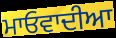
ਮਾਓਵਾਦੀਆ